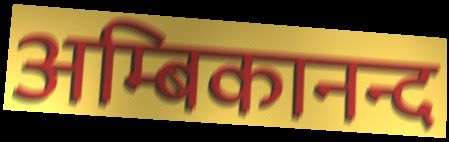
अम्बिकानन्द